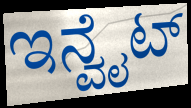
ಇನ್ವೈಟ್